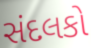
સંદલકો